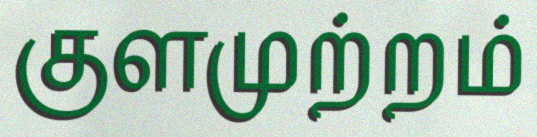
குளமுற்றம்